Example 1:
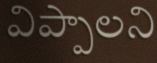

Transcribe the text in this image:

విప్పాలని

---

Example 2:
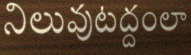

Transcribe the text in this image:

నిలువుటద్దంలా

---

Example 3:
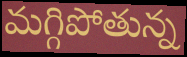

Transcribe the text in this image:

మగ్గిపోతున్న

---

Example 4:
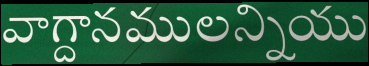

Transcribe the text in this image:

వాగ్దానములన్నియు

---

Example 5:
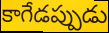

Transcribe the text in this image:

కాగేడప్పుడు